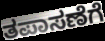
ತಪಾಸಣೆಗೆ